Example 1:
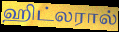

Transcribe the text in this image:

ஹிட்லரால்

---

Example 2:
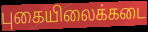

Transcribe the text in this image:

புகையிலைக்கடை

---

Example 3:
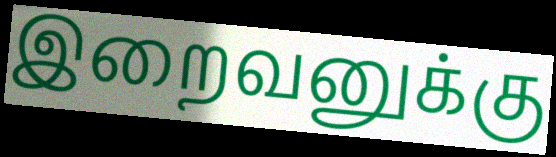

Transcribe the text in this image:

இறைவனுக்கு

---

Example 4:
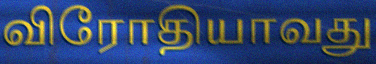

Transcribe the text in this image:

விரோதியாவது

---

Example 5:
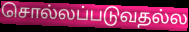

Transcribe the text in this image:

சொல்லப்படுவதல்ல